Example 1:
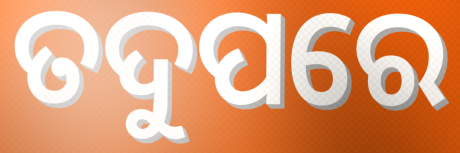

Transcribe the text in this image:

ତଦୁପରେ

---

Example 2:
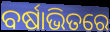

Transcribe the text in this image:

ବର୍ଷାଭିତରେ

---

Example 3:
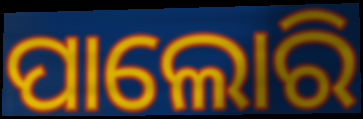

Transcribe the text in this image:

ପାଲୋରି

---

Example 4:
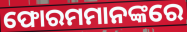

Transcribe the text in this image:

ଫୋରମମାନଙ୍କରେ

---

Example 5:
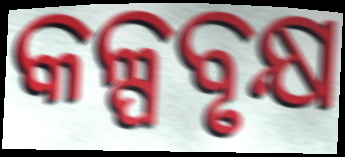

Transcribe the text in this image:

କଳ୍ପବୃକ୍ଷ